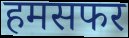
हमसफर